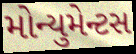
મોન્યુમેન્ટસ